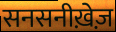
सनसनीख़ेज़